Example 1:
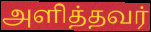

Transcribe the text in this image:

அளித்தவர்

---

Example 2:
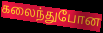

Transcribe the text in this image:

கலைந்துபோன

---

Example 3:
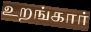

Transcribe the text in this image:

உறங்கார்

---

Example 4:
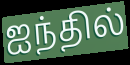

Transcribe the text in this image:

ஐந்தில்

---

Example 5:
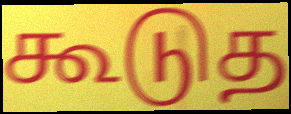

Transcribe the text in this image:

கூடுத